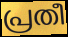
പ്രതീ